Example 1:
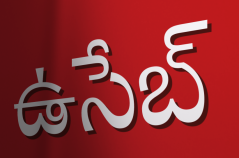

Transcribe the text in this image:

ఉసేబ్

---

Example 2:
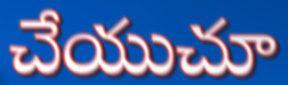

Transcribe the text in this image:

చేయుచూ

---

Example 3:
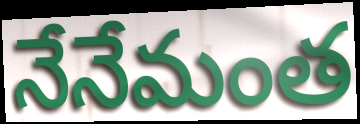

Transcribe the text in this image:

నేనేమంత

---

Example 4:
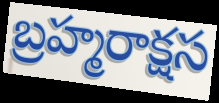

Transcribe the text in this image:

బ్రహ్మరాక్షస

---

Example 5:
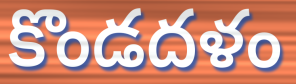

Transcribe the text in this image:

కొండదళం